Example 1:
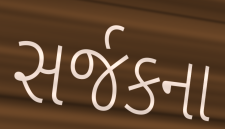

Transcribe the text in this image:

સર્જકના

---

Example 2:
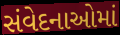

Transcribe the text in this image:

સંવેદનાઓમાં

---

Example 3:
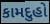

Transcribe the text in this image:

કામદુહો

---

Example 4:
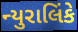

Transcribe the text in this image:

ન્યુરાલિંકે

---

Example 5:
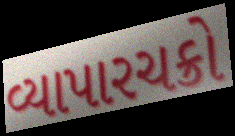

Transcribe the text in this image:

વ્યાપારચક્રો